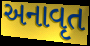
અનાવૃત